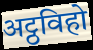
अट्ठविहो